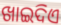
ଖାଇଦିଏ